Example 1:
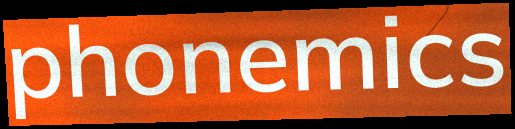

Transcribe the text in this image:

phonemics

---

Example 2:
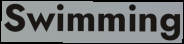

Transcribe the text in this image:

Swimming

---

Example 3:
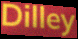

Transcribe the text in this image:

Dilley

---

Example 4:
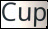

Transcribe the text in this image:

Cup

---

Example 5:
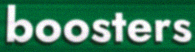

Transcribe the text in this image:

boosters